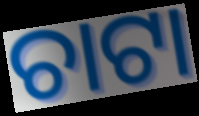
ଚାଟା